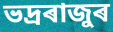
ভদ্ৰৰাজুৰ